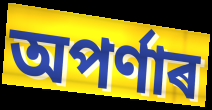
অপৰ্ণাৰ